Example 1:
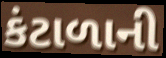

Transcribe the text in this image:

કંટાળાની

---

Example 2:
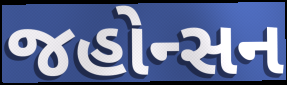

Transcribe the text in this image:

જહોન્સન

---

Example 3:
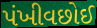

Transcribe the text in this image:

પંખીવછોઈ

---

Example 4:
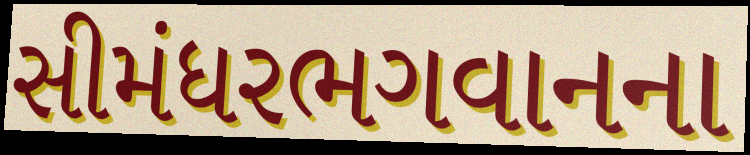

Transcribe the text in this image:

સીમંધરભગવાનના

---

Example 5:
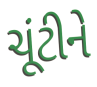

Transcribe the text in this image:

ચૂંટીને